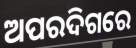
ଅପରଦିଗରେ